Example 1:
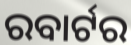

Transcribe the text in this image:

ରବାର୍ଟର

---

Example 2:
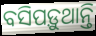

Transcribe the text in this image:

ବସିପଡ଼ୁଥାନ୍ତି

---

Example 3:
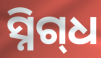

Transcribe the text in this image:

ସ୍ନିଗ୍‌ଧ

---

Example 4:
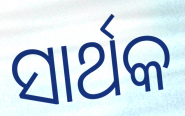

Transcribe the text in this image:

ସାର୍ଥକ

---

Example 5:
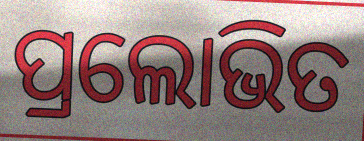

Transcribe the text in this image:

ପ୍ରଲୋଭିତ